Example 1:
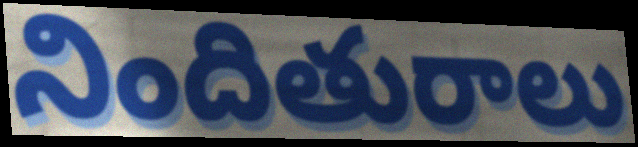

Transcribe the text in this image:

నిందితురాలు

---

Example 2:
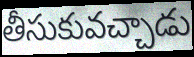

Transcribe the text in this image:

తీసుకువచ్చాడు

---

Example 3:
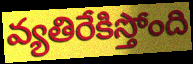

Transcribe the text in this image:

వ్యతిరేకిస్తోంది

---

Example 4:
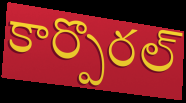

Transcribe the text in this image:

కార్పొరల్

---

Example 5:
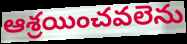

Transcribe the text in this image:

ఆశ్రయించవలెను